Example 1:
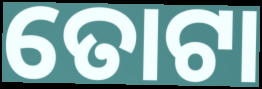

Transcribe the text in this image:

ତୋଟା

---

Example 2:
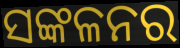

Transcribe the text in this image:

ସଙ୍କଳନର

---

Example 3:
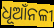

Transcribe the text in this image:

ଧୂଆଁନଳୀ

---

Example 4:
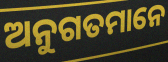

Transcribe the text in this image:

ଅନୁଗତମାନେ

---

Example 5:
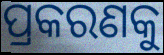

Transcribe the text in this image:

ପ୍ରକରଣକୁ